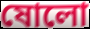
ষোলো